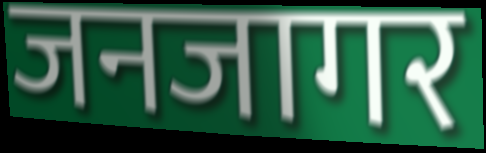
जनजागर